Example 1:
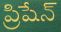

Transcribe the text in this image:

ప్రిషేన్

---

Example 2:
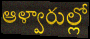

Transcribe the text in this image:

ఆళ్వారుల్లో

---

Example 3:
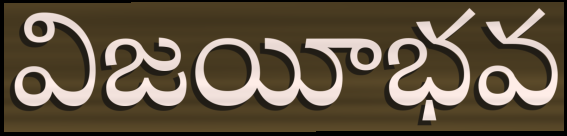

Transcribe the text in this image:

విజయీభవ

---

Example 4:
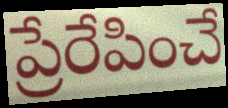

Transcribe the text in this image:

ప్రేరేపించే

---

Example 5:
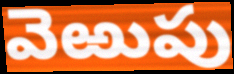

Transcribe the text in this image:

వెఱుపు